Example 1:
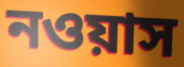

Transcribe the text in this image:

নওয়াস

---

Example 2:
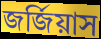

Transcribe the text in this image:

জর্জিয়াস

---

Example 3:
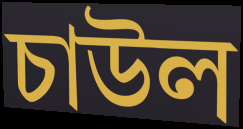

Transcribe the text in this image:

চাউল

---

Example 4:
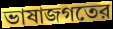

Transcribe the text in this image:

ভাষাজগতের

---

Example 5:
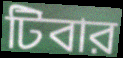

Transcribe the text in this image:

টিবার